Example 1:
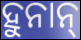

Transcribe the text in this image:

ହୁନାନ୍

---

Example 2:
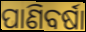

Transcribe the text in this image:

ପାଣିବର୍ଷା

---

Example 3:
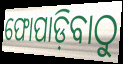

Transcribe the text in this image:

ଫୋପାଡ଼ିବାଠୁ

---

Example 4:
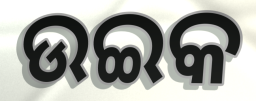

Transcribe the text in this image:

ଉଇକ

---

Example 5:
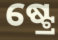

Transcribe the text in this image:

ଷ୍ଟ୍ରେ